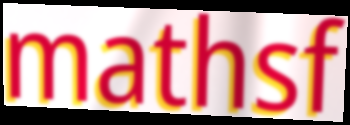
mathsf